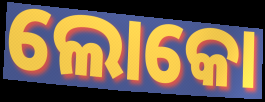
ଲୋକୋ